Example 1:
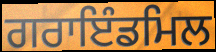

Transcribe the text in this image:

ਗਰਾਇੰਡਮਿਲ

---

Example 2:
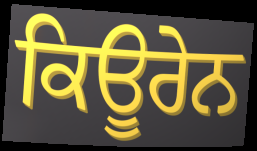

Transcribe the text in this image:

ਕਿਊਰੇਨ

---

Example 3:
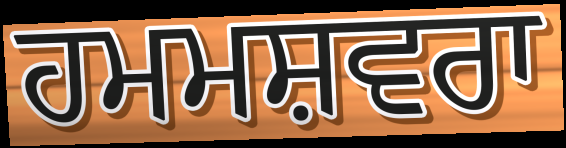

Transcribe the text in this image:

ਹਮਮਸ਼ਵਰਾ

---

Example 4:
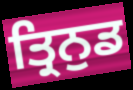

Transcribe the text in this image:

ਤ੍ਰਿਨੁਡ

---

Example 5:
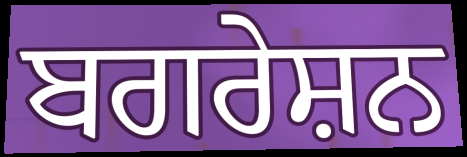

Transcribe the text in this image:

ਬਗਰੇਸ਼ਨ